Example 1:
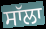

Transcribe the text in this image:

ਸਾੱਲਾ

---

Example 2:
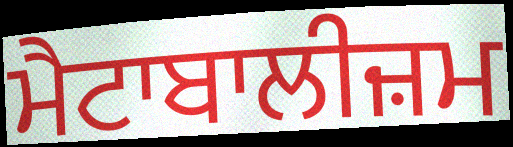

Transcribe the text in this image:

ਮੈਟਾਬਾਲੀਜ਼ਮ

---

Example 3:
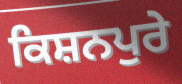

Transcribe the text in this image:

ਕਿਸ਼ਨਪੁਰੇ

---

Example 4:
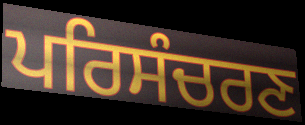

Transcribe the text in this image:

ਪਰਿਸੰਚਰਣ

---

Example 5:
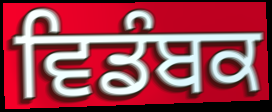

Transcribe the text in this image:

ਵਿਡੰਬਕ